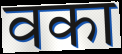
वका